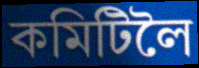
কমিটিলৈ